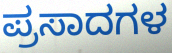
ಪ್ರಸಾದಗಳ